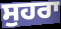
ਸੁਹਰਾ